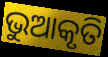
ଭୁଆକୃତି